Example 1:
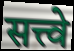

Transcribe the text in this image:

सत्त्वे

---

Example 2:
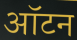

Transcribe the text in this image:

ऑटन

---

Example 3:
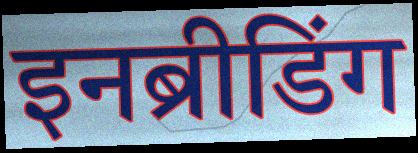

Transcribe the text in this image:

इनब्रीडिंग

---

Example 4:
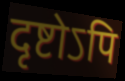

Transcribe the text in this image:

दृष्टोऽपि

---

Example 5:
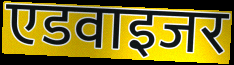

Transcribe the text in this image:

एडवाइजर